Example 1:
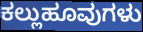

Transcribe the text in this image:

ಕಲ್ಲುಹೂವುಗಳು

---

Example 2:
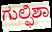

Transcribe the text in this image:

ಗುಲ್ಫಿಶಾ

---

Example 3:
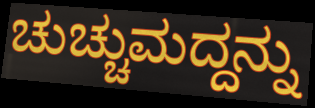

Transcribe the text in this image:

ಚುಚ್ಚುಮದ್ದನ್ನು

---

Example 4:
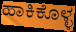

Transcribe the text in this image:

ಹಾಕಿಕೊಳ್ಳ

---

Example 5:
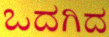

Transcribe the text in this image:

ಒದಗಿದ